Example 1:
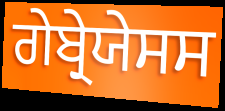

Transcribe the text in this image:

ਗੇਬ੍ਰੇਯੇਸਸ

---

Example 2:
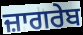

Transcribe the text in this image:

ਜ਼ਾਗਰੇਬ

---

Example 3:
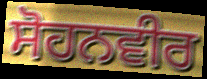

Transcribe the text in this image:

ਸੋਹਨਵੀਰ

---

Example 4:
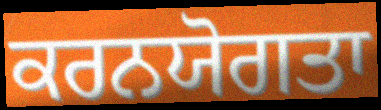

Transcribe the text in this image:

ਕਰਨਯੋਗਤਾ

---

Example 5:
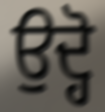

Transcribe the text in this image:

ਉਦ੍ਹੋ